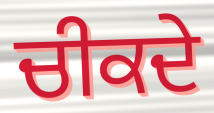
ਚੀਕਦੇ